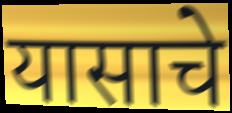
यासाचे